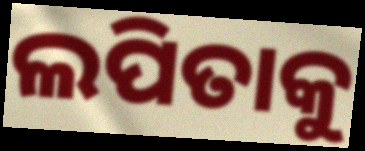
ଲପିତାକୁ